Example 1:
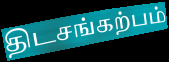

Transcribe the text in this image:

திடசங்கற்பம்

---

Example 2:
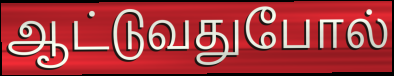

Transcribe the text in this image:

ஆட்டுவதுபோல்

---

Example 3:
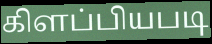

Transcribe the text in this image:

கிளப்பியபடி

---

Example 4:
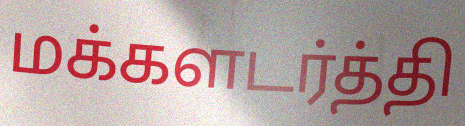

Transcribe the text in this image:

மக்களடர்த்தி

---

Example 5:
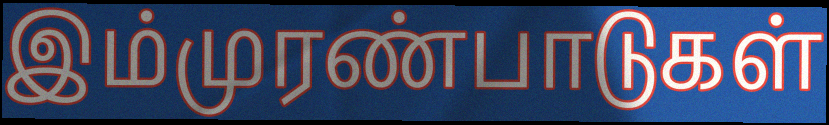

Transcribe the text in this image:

இம்முரண்பாடுகள்